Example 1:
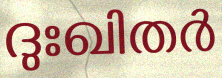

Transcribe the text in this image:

ദുഃഖിതർ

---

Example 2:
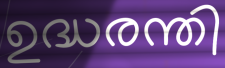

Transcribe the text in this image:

ഉദ്ധരന്തി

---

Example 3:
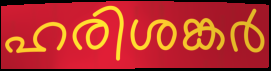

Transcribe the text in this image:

ഹരിശങ്കർ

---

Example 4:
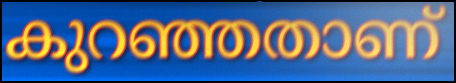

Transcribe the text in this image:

കുറഞ്ഞതാണ്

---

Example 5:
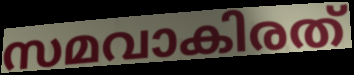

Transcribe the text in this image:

സമവാകിരത്